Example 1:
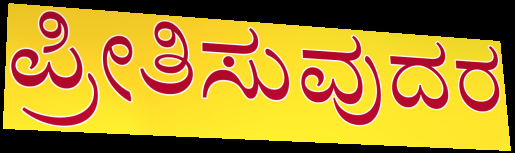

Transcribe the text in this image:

ಪ್ರೀತಿಸುವುದರ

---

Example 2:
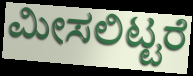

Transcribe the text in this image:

ಮೀಸಲಿಟ್ಟರೆ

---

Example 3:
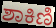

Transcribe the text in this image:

ಶಾಕಿಣಿ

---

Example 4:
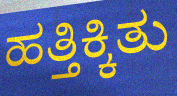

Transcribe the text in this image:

ಹತ್ತಿಕ್ಕಿತು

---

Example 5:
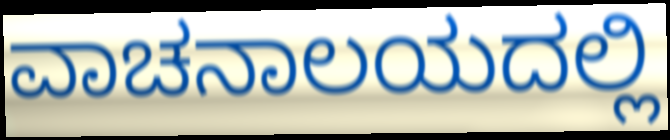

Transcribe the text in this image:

ವಾಚನಾಲಯದಲ್ಲಿ